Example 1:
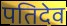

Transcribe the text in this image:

पतिदेव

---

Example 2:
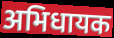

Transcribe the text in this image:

अभिधायक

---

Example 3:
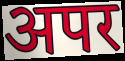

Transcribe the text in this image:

अपर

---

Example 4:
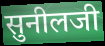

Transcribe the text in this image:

सुनीलजी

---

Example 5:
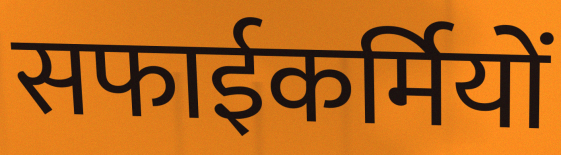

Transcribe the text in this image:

सफाईकर्मियों